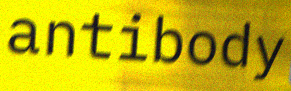
antibody